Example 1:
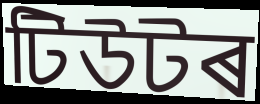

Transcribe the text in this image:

টিউটৰ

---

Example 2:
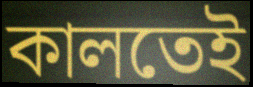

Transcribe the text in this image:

কালতেই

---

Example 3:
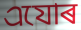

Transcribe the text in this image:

এযোৰ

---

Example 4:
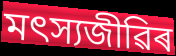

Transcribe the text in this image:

মৎস্যজীৱিৰ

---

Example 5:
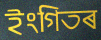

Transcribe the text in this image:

ইংগিতৰ